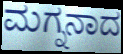
ಮಗ್ನನಾದ